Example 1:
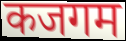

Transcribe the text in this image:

कजगम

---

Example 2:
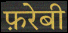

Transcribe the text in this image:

फ़रेबी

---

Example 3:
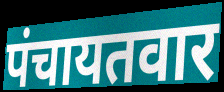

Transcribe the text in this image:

पंचायतवार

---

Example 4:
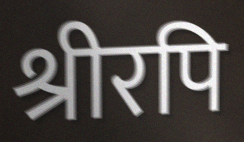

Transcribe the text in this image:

श्रीरपि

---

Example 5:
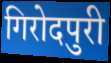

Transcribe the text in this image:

गिरोदपुरी